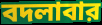
বদলাবার